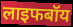
लाइफबॉय